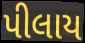
પીલાય